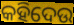
କହିଦେଉ